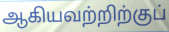
ஆகியவற்றிற்குப்